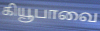
கியூபாவை